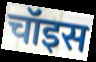
चॉइस